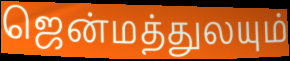
ஜென்மத்துலயும்